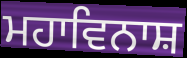
ਮਹਾਵਿਨਾਸ਼